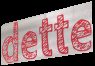
dette